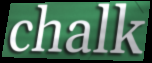
chalk